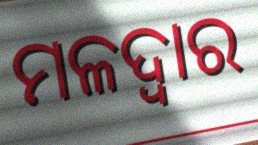
ମଳଦ୍ୱାର